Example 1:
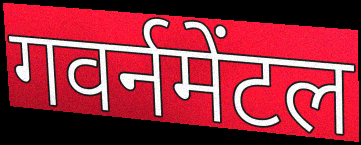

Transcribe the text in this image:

गवर्नमेंटल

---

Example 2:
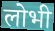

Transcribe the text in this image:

लोभी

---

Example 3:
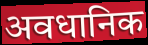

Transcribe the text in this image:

अवधानिक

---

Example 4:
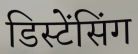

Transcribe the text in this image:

डिस्टेंसिंग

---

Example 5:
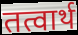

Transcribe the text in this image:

तत्वार्थ